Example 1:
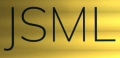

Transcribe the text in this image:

JSML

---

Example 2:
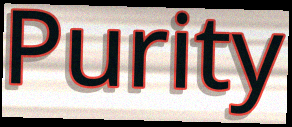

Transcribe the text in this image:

Purity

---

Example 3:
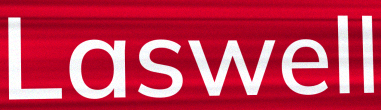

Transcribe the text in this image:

Laswell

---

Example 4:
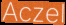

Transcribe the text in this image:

Aczel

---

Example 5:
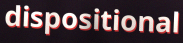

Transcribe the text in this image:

dispositional